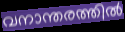
വനാന്തരത്തിൽ